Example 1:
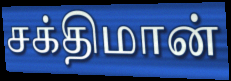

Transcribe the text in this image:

சக்திமான்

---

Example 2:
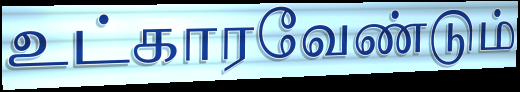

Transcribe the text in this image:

உட்காரவேண்டும்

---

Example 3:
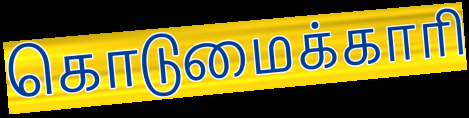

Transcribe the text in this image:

கொடுமைக்காரி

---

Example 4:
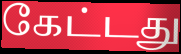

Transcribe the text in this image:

கேட்டது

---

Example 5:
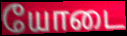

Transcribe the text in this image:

யோடை